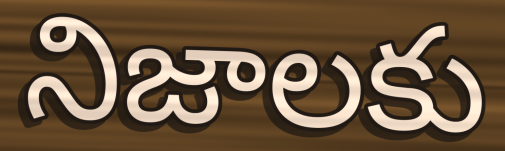
నిజాలకు